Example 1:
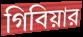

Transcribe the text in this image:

গিবিয়ার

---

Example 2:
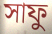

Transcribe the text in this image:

সাফু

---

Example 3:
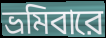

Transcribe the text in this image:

ভ্রমিবারে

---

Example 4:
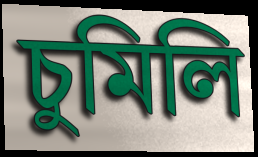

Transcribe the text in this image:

চুমিলি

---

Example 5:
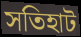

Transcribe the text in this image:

সতিহাট